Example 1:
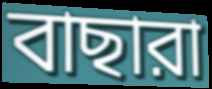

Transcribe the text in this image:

বাছারা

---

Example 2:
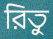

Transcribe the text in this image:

রিতু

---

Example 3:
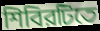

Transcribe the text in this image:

শিবিরটিতে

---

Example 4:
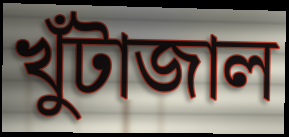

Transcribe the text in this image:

খুঁটাজাল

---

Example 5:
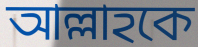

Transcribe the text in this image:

আল্লাহকে